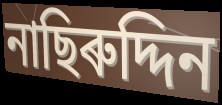
নাছিৰুদ্দিন